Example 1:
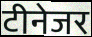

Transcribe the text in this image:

टीनेजर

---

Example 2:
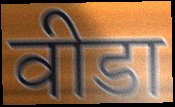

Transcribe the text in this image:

वीडा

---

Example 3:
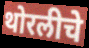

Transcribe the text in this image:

थोरलीचे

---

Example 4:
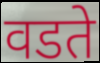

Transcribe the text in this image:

वडते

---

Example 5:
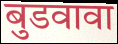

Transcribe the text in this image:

बुडवावा